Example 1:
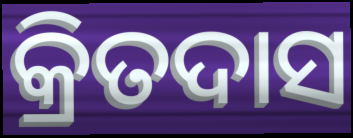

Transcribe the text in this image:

କ୍ରିତଦାସ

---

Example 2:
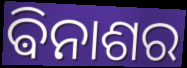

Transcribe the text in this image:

ଵିନାଶର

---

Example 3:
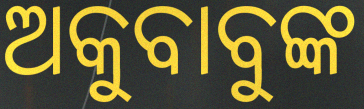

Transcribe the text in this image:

ଅକୁବାବୁଙ୍କ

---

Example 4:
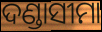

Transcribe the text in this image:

ଦଣ୍ଡାସୀମା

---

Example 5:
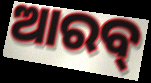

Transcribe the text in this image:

ଆରବ୍